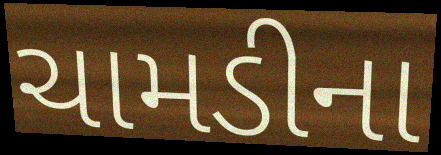
ચામડીના